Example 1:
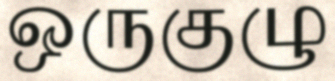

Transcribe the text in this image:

ஒருகுழு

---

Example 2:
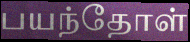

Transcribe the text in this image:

பயந்தோள்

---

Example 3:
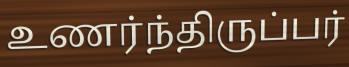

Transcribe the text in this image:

உணர்ந்திருப்பர்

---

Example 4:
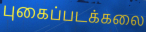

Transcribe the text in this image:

புகைப்படக்கலை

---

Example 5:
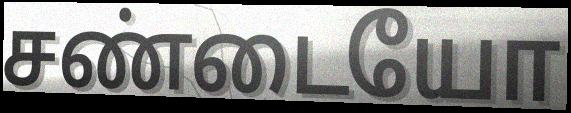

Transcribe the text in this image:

சண்டையோ